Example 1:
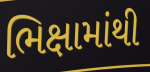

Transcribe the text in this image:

ભિક્ષામાંથી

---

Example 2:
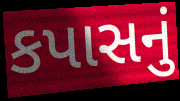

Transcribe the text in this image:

કપાસનું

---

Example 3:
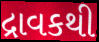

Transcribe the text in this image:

દ્રાવકથી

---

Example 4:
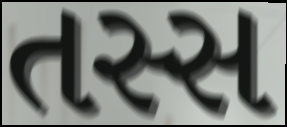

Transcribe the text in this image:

તસ્સ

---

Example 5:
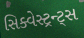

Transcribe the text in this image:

સિક્વેસ્ટ્રન્ટ્સ